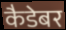
कैडेबर